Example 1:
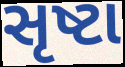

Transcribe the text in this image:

સૃષ્ટા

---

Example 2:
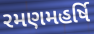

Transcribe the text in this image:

રમણમહર્ષિ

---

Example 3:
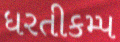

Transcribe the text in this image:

ધરતીકમ્પ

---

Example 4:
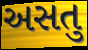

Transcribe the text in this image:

અસતુ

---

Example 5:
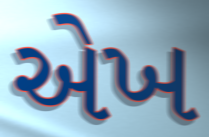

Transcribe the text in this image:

એખ